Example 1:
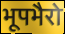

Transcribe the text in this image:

भूपभैरो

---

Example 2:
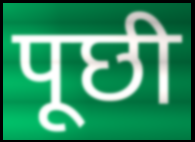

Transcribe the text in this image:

पूछी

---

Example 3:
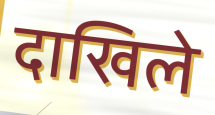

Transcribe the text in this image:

दाखिले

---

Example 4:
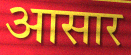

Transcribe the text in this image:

आसार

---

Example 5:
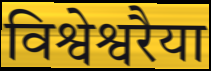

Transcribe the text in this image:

विश्वेश्वरैया